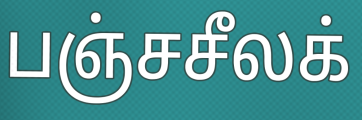
பஞ்சசீலக்